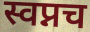
स्वप्नच